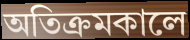
অতিক্রমকালে